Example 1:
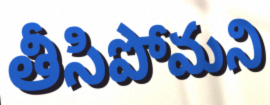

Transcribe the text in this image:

తీసిపోమని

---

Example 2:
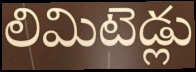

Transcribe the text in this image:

లిమిటెడ్లు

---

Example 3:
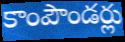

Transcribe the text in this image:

కాంపౌండర్లు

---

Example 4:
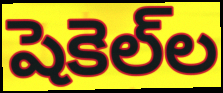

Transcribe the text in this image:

షెకెల్‌ల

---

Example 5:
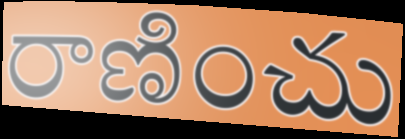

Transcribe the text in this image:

రాణించు